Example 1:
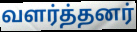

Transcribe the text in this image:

வளர்த்தனர்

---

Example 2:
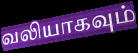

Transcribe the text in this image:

வலியாகவும்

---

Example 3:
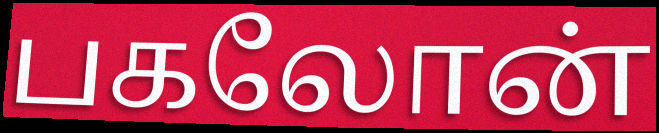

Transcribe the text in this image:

பகலோன்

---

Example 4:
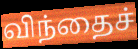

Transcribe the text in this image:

விந்தைச்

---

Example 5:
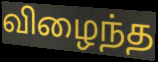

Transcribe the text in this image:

விழைந்த